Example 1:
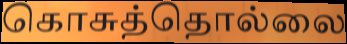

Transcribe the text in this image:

கொசுத்தொல்லை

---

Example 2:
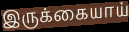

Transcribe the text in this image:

இருக்கையாய்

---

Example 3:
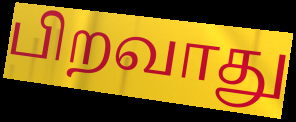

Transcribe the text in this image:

பிறவாது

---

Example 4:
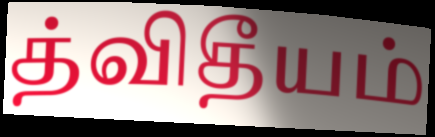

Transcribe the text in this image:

த்விதீயம்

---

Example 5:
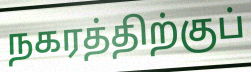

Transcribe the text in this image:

நகரத்திற்குப்